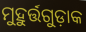
ମୁହୁର୍ତ୍ତଗୁଡ଼ାକ